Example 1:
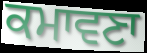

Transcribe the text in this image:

ਕਮਾਵਣਾ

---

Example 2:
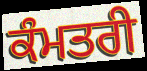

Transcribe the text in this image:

ਕੰਮਤਰੀ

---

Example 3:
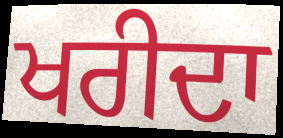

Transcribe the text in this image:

ਖਰੀਦਾ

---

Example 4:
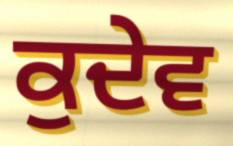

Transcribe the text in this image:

ਕੁਦੇਵ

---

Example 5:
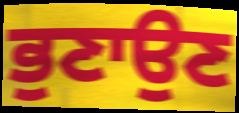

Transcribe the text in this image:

ਭੁਣਾਉਣ